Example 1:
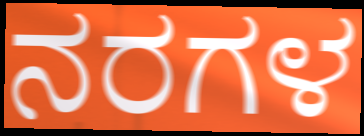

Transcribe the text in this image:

ನರಗಳ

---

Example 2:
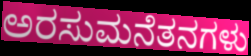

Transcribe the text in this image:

ಅರಸುಮನೆತನಗಳು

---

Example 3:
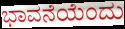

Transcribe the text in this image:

ಭಾವನೆಯೆಂದು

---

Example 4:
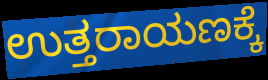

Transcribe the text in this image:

ಉತ್ತರಾಯಣಕ್ಕೆ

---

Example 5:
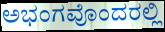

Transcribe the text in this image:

ಅಭಂಗವೊಂದರಲ್ಲಿ